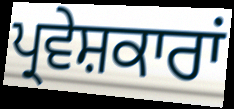
ਪ੍ਰਵੇਸ਼ਕਾਰਾਂ